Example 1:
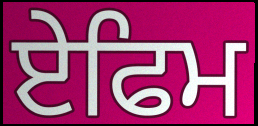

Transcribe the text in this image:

ਏਫਿਮ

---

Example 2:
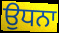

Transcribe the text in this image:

ਉਧਨਾ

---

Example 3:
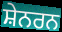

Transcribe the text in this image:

ਸ਼ੇਨਰਨ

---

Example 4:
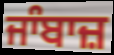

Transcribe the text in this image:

ਜਾੰਬਾਜ਼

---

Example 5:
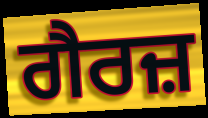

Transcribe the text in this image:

ਗੈਰਜ਼